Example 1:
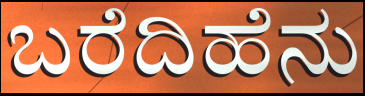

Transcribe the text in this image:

ಬರೆದಿಹೆನು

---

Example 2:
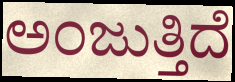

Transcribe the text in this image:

ಅಂಜುತ್ತಿದೆ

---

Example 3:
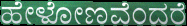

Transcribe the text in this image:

ಹೇಳೋಣವೆಂದರೆ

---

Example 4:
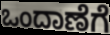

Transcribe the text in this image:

ಒಂದಾಣೆಗೆ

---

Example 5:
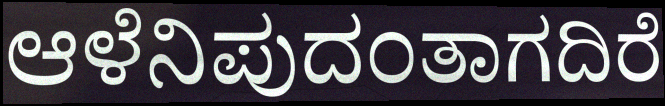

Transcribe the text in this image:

ಆಳೆನಿಪುದಂತಾಗದಿರೆ